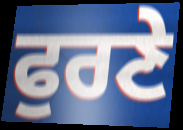
ਫੁਰਣੇ